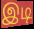
இடி